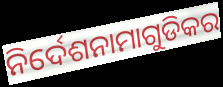
ନିର୍ଦେଶନାମାଗୁଡିକର